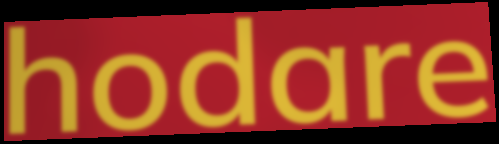
hodare